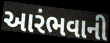
આરંભવાની